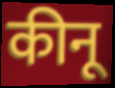
कीनू